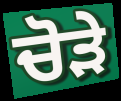
ਚੋੜੇ